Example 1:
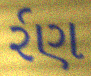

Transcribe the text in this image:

ર્રણ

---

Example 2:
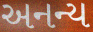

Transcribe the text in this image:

અનન્ય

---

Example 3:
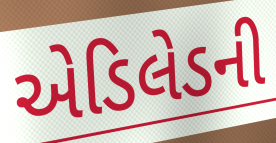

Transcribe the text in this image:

એડિલેડની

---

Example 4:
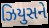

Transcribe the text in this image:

ઝિયુસને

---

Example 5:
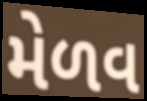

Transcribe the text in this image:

મેળવ